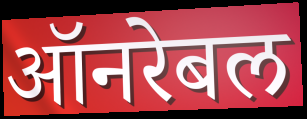
ऑनरेबल